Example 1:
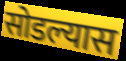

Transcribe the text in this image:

सोडल्यास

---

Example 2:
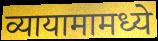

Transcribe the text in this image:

व्यायामामध्ये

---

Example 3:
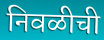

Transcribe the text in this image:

निवळीची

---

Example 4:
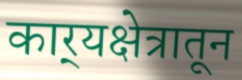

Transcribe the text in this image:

कार्यक्षेत्रातून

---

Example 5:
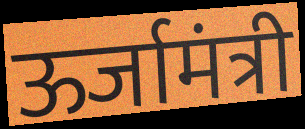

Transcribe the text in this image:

ऊर्जामंत्री